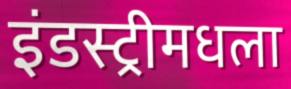
इंडस्ट्रीमधला